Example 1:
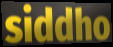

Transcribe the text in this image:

siddho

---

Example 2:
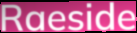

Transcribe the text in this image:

Raeside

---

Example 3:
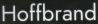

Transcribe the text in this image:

Hoffbrand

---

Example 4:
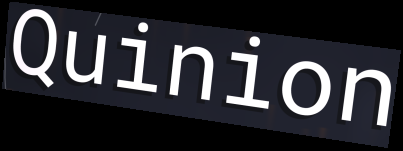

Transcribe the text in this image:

Quinion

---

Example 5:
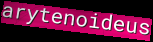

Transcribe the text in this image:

arytenoideus